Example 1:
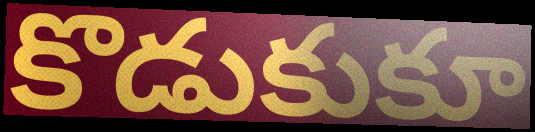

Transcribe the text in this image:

కొడుకుకూ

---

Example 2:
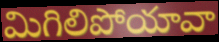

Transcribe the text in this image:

మిగిలిపోయావా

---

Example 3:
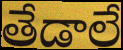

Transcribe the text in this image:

తేడాలే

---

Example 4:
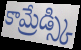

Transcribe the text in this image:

కామ్రేడ్స్కి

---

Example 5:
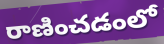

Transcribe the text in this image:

రాణించడంలో